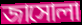
জাসোলা